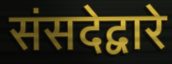
संसदेद्वारे